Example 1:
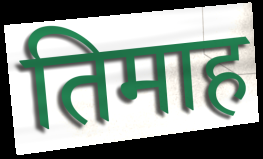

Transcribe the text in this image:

तिमाह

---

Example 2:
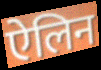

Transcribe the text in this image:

ऐलिन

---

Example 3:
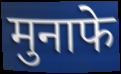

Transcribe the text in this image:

मुनाफे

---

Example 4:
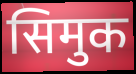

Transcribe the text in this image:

सिमुक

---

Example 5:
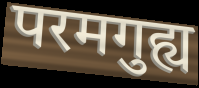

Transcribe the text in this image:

परमगुह्य